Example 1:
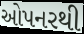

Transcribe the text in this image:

ઓપનરથી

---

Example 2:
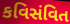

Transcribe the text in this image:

કવિસંવિત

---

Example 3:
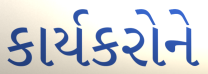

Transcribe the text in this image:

કાર્યકરોને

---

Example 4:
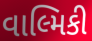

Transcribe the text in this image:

વાલ્મિકી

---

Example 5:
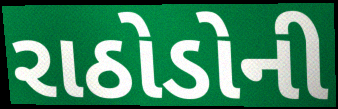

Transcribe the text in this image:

રાઠોડોની